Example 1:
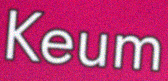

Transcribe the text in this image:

Keum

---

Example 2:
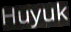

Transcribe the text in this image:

Huyuk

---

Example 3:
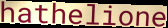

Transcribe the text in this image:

hathelione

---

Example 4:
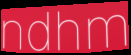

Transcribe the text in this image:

ndhm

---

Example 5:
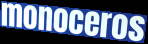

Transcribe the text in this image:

monoceros